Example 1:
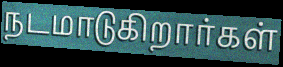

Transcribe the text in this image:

நடமாடுகிறார்கள்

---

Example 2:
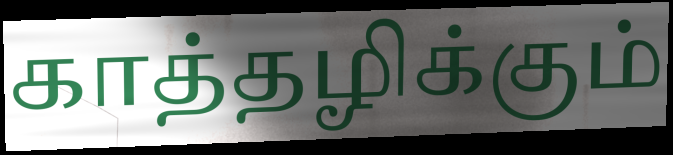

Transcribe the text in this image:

காத்தழிக்கும்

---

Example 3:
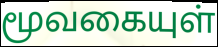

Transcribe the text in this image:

மூவகையுள்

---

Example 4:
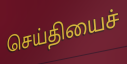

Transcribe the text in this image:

செய்தியைச்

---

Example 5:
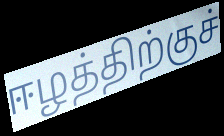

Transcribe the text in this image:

ஈழத்திற்குச்